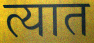
त्यात